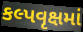
કલ્પવૃક્ષમાં